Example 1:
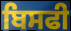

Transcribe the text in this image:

ਬਿਸਫੀ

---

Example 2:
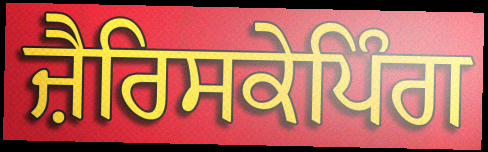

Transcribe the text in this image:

ਜ਼ੈਰਿਸਕੇਪਿੰਗ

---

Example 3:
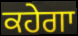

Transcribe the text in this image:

ਕਹੇਗਾ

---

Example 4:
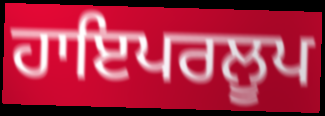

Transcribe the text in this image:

ਹਾਇਪਰਲੂਪ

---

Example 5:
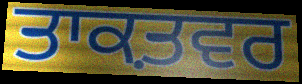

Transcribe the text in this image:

ਤਾਕ਼ਤਵਰ